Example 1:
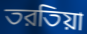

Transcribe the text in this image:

তরতিয়া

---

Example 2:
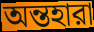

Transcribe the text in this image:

অন্তহারা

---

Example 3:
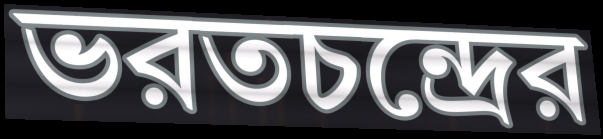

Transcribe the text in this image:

ভরতচন্দ্রের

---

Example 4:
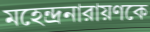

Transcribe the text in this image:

মহেন্দ্রনারায়ণকে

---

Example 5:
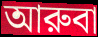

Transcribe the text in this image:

আরুবা